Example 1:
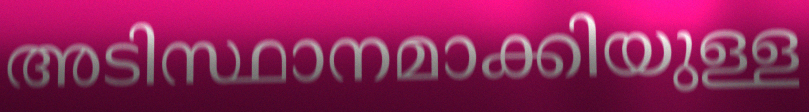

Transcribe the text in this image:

അടിസ്ഥാനമാക്കിയുള്ള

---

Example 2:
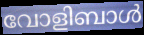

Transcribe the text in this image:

വോളിബാൾ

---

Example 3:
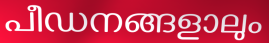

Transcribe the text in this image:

പീഡനങ്ങളാലും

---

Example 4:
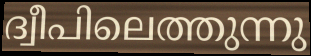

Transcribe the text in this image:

ദ്വീപിലെത്തുന്നു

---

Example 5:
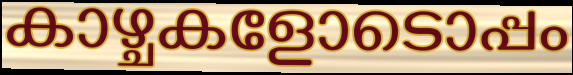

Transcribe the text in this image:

കാഴ്ചകളോടൊപ്പം